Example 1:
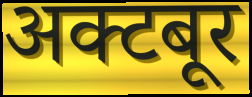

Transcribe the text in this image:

अक्टबूर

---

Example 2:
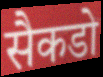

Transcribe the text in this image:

सैकडो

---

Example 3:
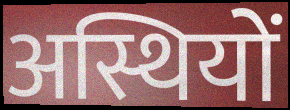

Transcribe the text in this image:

अस्थियों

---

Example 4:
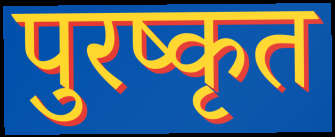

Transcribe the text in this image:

पुरष्कृत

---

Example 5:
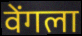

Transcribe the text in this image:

वेंगला